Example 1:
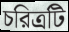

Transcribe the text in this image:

চরিত্রটি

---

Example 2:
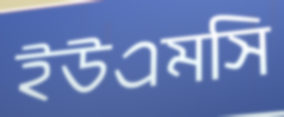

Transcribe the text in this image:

ইউএমসি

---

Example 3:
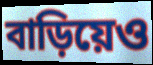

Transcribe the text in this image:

বাড়িয়েও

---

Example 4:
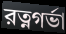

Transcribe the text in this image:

রত্নগর্ভা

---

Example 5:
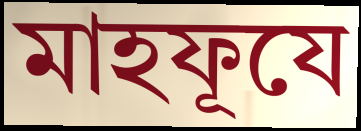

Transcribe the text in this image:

মাহফূযে